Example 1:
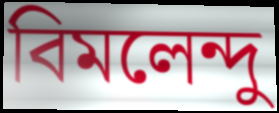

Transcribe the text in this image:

বিমলেন্দু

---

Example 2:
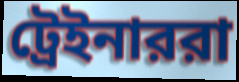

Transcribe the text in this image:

ট্রেইনাররা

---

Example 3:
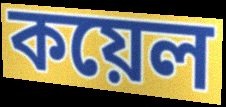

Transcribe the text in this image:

কয়েল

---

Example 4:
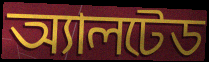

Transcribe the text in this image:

অ্যালটেড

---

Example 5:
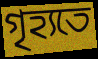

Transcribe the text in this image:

গৃহ্যতে